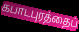
கபாடபுரத்தைப்